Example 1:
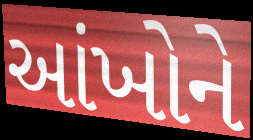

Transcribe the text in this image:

આંખોને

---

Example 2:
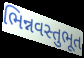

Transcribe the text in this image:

ભિન્નવસ્તુભૂત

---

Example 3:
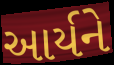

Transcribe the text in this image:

આર્યને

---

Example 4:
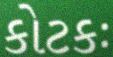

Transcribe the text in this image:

કોટકઃ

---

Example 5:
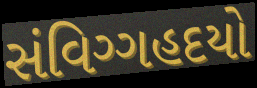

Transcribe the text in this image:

સંવિગ્ગહદયો